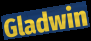
Gladwin